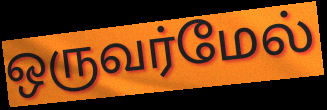
ஒருவர்மேல்